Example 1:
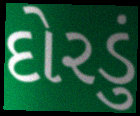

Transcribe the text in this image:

દોરડું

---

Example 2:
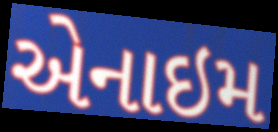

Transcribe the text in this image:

એનાઇમ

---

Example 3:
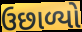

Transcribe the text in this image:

ઉછાળ્યો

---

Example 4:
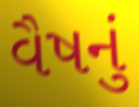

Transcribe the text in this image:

વૈષનું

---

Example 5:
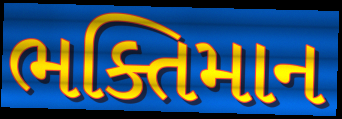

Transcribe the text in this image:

ભક્તિમાન